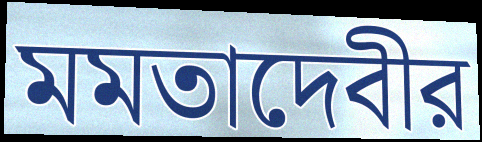
মমতাদেবীর